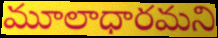
మూలాధారమని